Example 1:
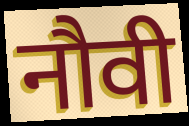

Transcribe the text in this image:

नौवी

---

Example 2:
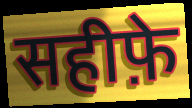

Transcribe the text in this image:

सहीफ़े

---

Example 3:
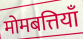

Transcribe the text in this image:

मोमबत्तियाँ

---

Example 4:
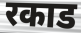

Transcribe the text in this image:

रकाड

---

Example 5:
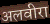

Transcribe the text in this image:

अलवीरा